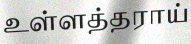
உள்ளத்தராய்